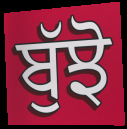
ਬੁੱਝੋ